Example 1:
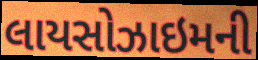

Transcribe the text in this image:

લાયસોઝાઇમની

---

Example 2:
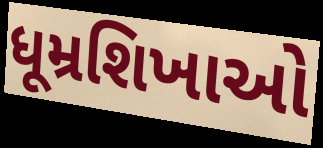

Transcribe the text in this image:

ધૂમ્રશિખાઓ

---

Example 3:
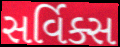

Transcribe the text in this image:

સર્વિક્સ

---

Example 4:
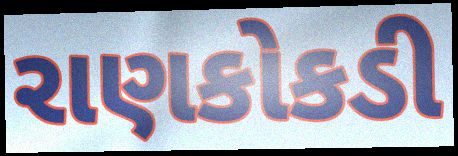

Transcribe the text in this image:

રાણકોકડી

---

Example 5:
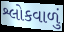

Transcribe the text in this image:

શ્લોકવાળું